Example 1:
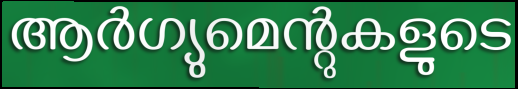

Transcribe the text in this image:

ആർഗ്യുമെന്റുകളുടെ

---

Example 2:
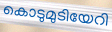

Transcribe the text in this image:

കൊടുമുടിയേറി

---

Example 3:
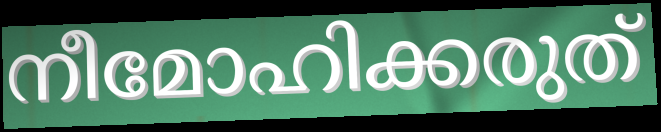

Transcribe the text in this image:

നീമോഹിക്കരുത്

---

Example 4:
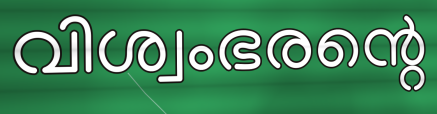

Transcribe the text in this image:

വിശ്വംഭരന്റെ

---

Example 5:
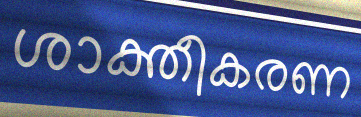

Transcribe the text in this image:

ശാക്തീകരണ